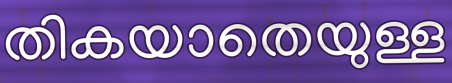
തികയാതെയുള്ള